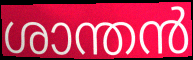
ശാന്തൻ